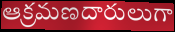
ఆక్రమణదారులుగా